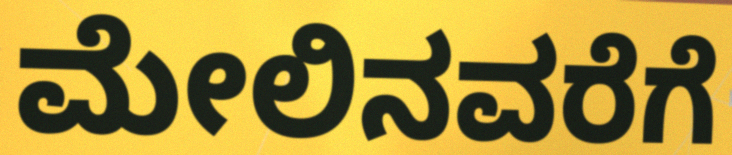
ಮೇಲಿನವರೆಗೆ